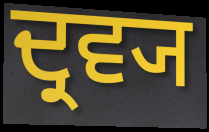
ਦ੍ਰਵ੍ਯ